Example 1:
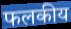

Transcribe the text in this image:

फलकीय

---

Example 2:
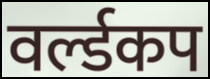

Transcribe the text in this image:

वर्ल्‍डकप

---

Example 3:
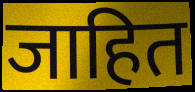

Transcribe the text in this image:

जाहित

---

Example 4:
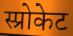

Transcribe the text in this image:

स्प्रोकेट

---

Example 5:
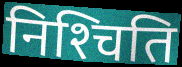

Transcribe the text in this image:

निश्चिति